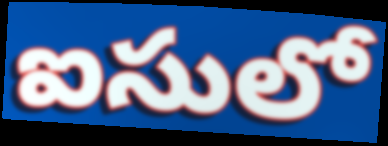
ఐసులో